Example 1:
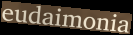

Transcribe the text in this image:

eudaimonia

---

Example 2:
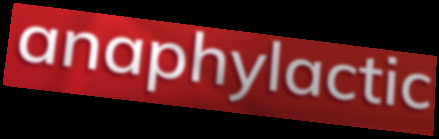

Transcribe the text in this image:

anaphylactic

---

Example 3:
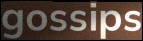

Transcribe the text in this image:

gossips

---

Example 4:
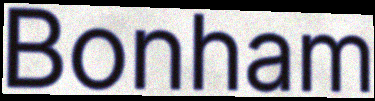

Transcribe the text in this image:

Bonham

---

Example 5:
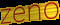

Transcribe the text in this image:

zeno